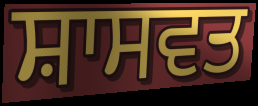
ਸ਼ਾਸਵਤ